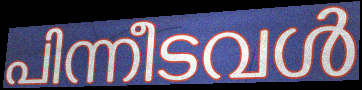
പിന്നീടവൾ